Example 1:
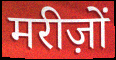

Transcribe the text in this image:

मरीज़ों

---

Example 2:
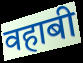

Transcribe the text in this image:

वहाबी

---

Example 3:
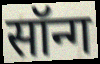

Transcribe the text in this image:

सॉन्ग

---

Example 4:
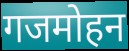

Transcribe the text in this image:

गजमोहन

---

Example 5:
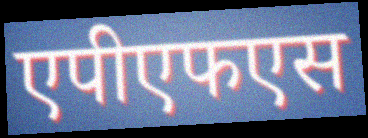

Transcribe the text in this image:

एपीएफएस